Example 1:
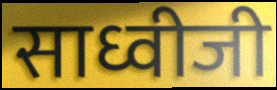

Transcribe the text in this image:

साध्वीजी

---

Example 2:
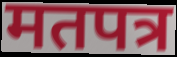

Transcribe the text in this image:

मतपत्र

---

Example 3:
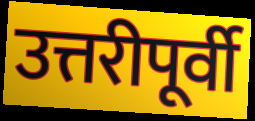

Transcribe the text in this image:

उत्तरीपूर्वी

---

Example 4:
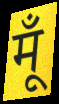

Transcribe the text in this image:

मूँ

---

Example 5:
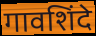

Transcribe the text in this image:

गावशिंदे